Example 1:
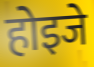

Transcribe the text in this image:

होइजे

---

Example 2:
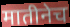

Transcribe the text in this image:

मातीनेच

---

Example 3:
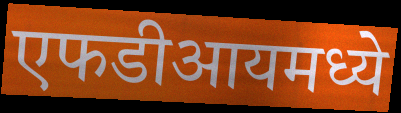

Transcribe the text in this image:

एफडीआयमध्ये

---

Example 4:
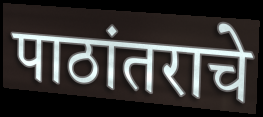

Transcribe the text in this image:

पाठांतराचे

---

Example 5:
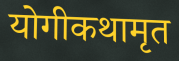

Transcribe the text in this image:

योगीकथामृत